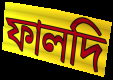
ফালদি